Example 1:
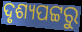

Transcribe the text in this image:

ଦୃଶ୍ୟପଟ୍ଟରୁ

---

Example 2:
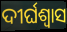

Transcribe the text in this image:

ଦୀର୍ଘଶ୍ବାସ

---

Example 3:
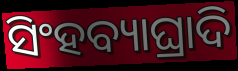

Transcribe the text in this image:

ସିଂହବ୍ୟାଘ୍ରାଦି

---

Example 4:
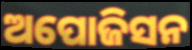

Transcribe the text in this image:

ଅପୋଜିସନ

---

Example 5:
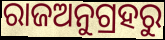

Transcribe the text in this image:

ରାଜଅନୁଗ୍ରହରୁ